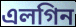
এলগিন